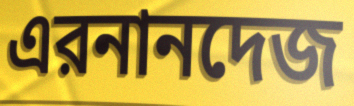
এরনানদেজ